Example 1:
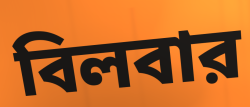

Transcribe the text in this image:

বিলবার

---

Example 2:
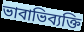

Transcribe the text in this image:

ভাবাভিব্যক্তি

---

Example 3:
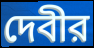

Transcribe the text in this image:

দেবীর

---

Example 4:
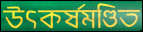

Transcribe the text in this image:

উৎকর্ষমণ্ডিত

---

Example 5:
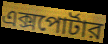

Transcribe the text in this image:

এক্সপোর্টার